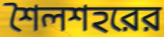
শৈলশহরের